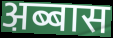
अ़ब्बास